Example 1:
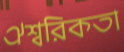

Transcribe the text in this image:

ঐশ্বরিকতা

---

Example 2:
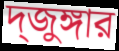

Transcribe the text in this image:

দ্জুঙ্গার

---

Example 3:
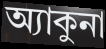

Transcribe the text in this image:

অ্যাকুনা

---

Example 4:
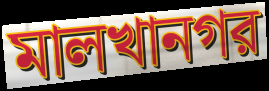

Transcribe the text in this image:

মালখানগর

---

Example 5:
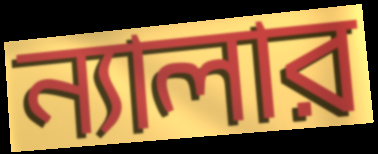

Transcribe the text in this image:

ন্যালার